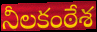
నీలకంఠేశ